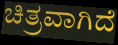
ಚಿತ್ರವಾಗಿದೆ